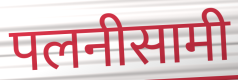
पलनीसामी